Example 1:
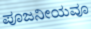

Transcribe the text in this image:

ಪೂಜನೀಯವೂ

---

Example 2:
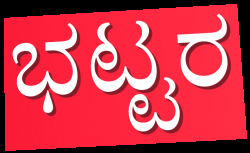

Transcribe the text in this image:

ಭಟ್ಟರ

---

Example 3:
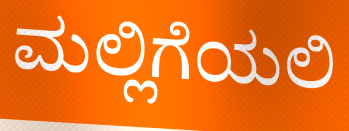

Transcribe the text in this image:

ಮಲ್ಲಿಗೆಯಲಿ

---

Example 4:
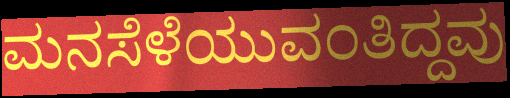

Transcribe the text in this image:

ಮನಸೆಳೆಯುವಂತಿದ್ದವು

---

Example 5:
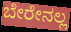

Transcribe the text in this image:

ಬೇರೇನಲ್ಲ